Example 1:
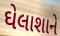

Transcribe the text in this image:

ઘેલાશાને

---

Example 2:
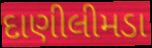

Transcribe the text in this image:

દાણીલીમડા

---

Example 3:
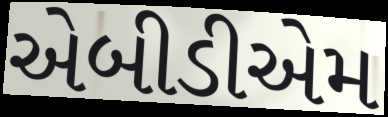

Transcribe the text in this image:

એબીડીએમ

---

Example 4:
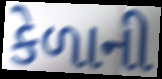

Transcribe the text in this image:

કેળાની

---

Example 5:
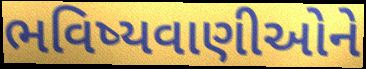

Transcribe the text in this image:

ભવિષ્યવાણીઓને